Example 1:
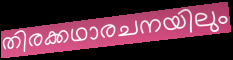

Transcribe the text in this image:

തിരക്കഥാരചനയിലും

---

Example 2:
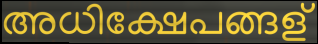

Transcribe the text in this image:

അധിക്ഷേപങ്ങള്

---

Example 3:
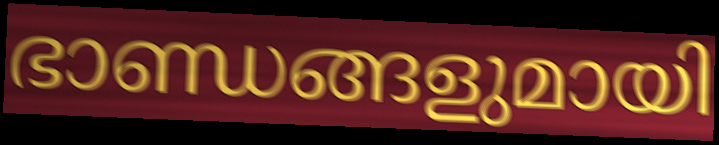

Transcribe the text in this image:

ഭാണ്ഡങ്ങളുമായി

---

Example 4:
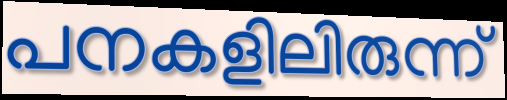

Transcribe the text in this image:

പനകളിലിരുന്ന്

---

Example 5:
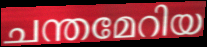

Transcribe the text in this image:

ചന്തമേറിയ